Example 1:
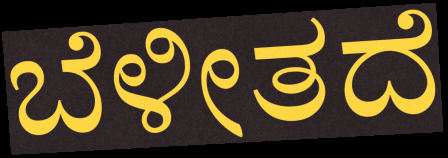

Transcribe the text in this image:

ಬೆಳೀತದೆ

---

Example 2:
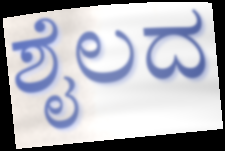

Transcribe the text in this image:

ಶೈಲದ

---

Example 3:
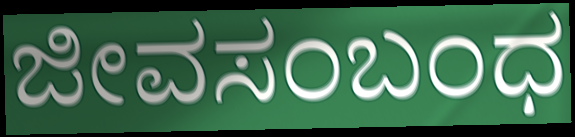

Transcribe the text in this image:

ಜೀವಸಂಬಂಧ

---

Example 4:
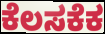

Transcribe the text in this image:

ಕೆಲಸಕೆಕ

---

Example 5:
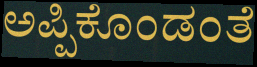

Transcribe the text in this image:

ಅಪ್ಪಿಕೊಂಡಂತೆ